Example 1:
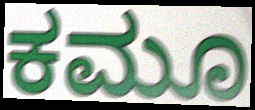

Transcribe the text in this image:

ಕಮೂ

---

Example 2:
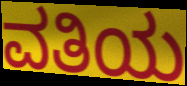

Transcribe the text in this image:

ವತಿಯ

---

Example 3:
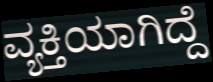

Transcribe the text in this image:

ವ್ಯಕ್ತಿಯಾಗಿದ್ದೆ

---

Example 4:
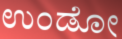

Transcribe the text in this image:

ಉಂಡೋ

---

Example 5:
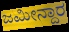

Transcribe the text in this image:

ಜಮೀನ್ದಾರ